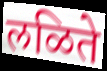
लळिते